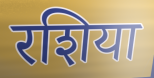
रशिया